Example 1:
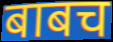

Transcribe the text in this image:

बाबच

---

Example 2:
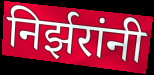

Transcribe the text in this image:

निर्झरांनी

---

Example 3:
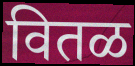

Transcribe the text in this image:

वितळ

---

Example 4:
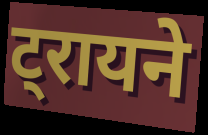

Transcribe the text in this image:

ट्रायने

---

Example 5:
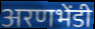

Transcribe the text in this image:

अरणभेंडी